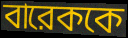
বারেককে